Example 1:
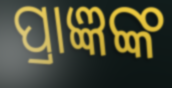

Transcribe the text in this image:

ପ୍ରାଜ୍ଞଙ୍କ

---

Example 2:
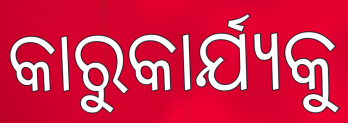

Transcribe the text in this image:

କାରୁକାର୍ଯ୍ୟକୁ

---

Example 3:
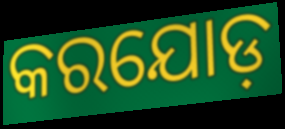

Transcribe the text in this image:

କରଯୋଡ଼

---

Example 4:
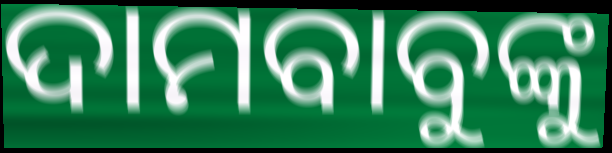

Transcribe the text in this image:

ଦାମବାବୁଙ୍କୁ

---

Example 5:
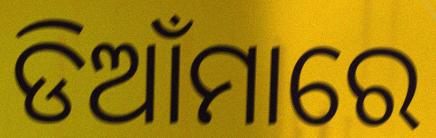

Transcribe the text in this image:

ଡିଆଁମାରେ